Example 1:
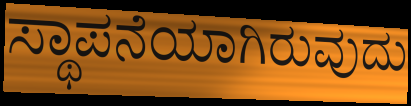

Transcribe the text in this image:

ಸ್ಥಾಪನೆಯಾಗಿರುವುದು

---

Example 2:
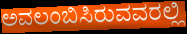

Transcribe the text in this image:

ಅವಲಂಬಿಸಿರುವವರಲ್ಲಿ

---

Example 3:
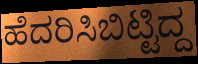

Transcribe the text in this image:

ಹೆದರಿಸಿಬಿಟ್ಟಿದ್ದ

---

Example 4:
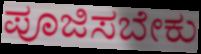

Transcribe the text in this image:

ಪೂಜಿಸಬೇಕು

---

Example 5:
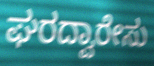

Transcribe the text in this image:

ಘರದ್ವಾರೇಸು